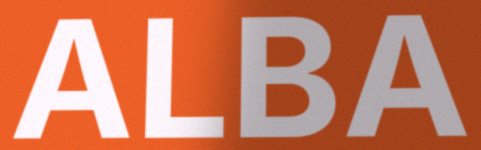
ALBA